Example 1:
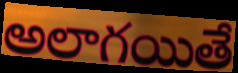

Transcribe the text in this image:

అలాగయితే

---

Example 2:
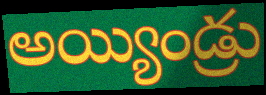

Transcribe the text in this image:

అయ్యిండ్రు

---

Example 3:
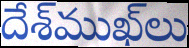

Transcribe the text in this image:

దేశ్‌ముఖ్‌లు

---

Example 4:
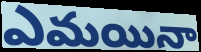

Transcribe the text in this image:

ఎమయినా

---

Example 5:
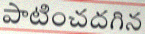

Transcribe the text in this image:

పాటించదగిన